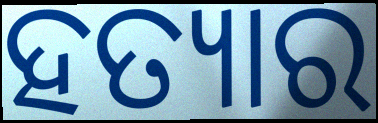
ହତ୍ୟାର